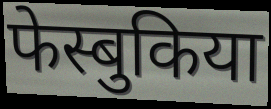
फेस्बुकिया